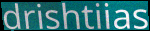
drishtiias